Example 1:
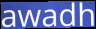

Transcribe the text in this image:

awadh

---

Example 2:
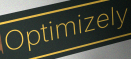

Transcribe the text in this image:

Optimizely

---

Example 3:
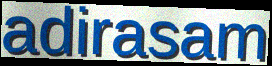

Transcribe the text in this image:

adirasam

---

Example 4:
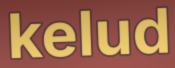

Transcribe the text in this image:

kelud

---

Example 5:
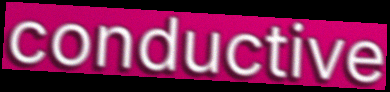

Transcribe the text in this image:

conductive